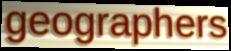
geographers